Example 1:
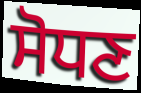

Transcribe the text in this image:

ਸੋਧਣ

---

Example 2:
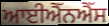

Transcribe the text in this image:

ਆਈਐੱਨਐੱਸ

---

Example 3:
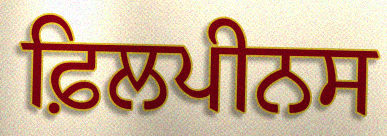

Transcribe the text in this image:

ਫ਼ਿਲਪੀਨਸ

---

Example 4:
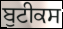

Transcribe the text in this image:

ਬੁਟੀਕਸ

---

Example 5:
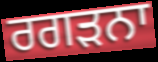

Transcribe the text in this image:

ਰਗੜਨਾ